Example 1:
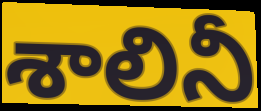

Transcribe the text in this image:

శాలినీ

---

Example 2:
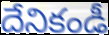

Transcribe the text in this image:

దేనికండీ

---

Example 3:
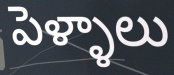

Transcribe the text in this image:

పెళ్ళాలు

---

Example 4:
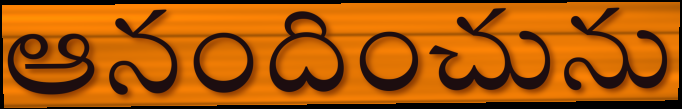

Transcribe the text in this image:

ఆనందించును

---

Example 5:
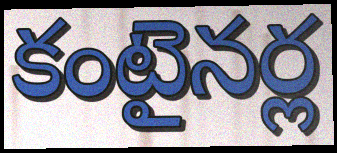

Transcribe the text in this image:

కంటైనర్ల